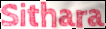
Sithara